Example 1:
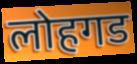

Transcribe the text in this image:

लोहगड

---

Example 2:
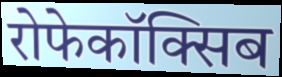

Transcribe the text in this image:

रोफेकॉक्सिब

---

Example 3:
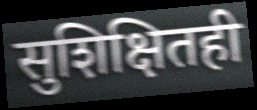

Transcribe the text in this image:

सुशिक्षितही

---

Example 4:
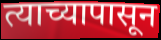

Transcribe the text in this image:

त्याच्यापासून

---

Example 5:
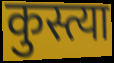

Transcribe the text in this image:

कुस्त्या